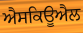
ਐਸਕਿਊਐਲ